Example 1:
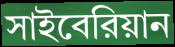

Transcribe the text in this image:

সাইবেরিয়ান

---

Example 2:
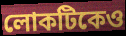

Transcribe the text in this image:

লোকটিকেও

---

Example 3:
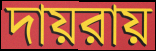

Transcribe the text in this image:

দায়রায়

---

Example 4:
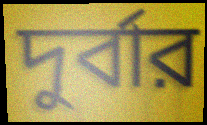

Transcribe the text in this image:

দুর্বার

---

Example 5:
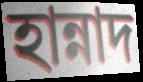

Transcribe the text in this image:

হান্নাদ